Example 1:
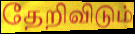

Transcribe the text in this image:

தேறிவிடும்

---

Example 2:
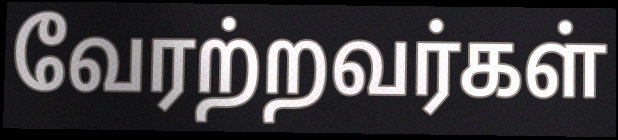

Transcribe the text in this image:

வேரற்றவர்கள்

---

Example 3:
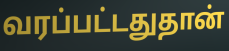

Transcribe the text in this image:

வரப்பட்டதுதான்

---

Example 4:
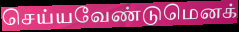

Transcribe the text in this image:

செய்யவேண்டுமெனக்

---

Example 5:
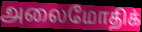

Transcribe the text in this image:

அலைமோதிக்